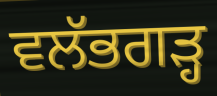
ਵਲੱਭਗੜ੍ਹ